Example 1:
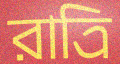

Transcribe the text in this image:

রাত্রি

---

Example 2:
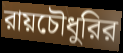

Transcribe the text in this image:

রায়চৌধুরির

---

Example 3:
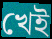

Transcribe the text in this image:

খেই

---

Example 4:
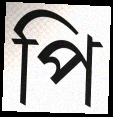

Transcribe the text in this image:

পি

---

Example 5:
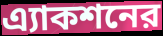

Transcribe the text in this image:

এ্যাকশনের